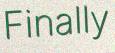
Finally